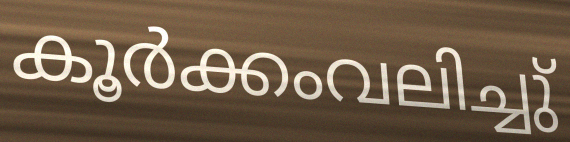
കൂർക്കംവലിച്ചു്